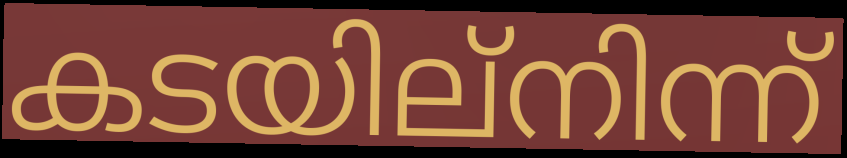
കടയില്നിന്ന്